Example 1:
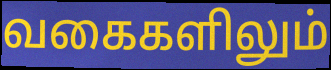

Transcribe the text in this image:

வகைகளிலும்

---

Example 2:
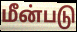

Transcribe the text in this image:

மீன்படு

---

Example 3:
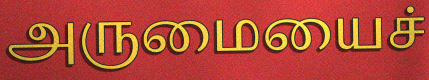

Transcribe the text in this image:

அருமையைச்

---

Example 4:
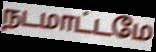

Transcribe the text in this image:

நடமாட்டமே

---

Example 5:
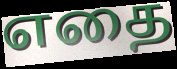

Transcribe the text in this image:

எதை